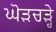
ਘੋੜਚੜ੍ਹੇ